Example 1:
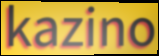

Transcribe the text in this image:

kazino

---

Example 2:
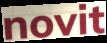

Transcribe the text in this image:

novit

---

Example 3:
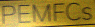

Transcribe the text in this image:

PEMFCs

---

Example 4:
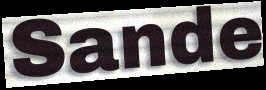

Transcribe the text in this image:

Sande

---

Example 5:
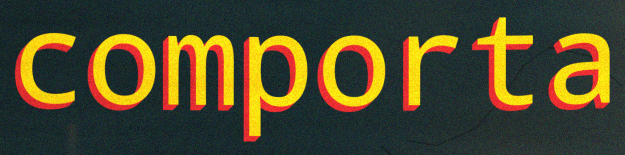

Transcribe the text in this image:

comporta